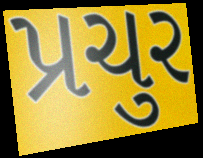
પ્રચુર